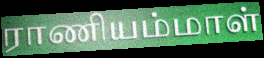
ராணியம்மாள்